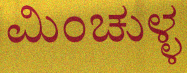
ಮಿಂಚುಳ್ಳ